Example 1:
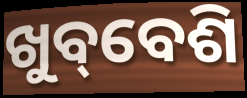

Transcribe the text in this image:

ଖୁବ୍‌ବେଶି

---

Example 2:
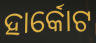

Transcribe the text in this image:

ହାର୍କୋଟ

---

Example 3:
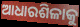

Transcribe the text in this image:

ଆଧାରଶିଳାକୁ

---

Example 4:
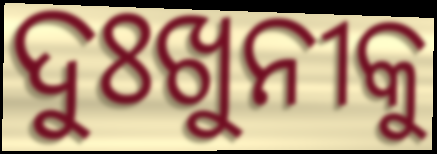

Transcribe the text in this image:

ଦୁଃଖୁନୀକୁ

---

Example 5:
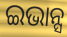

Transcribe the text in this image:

ଇଭାନ୍ସ